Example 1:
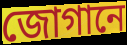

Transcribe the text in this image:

জোগানে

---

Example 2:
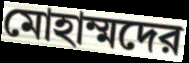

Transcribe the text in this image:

মোহাম্মদের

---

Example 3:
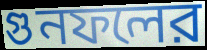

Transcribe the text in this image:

গুনফলের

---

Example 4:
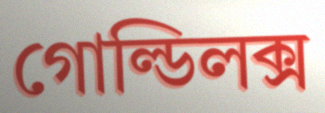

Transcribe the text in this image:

গোল্ডিলক্স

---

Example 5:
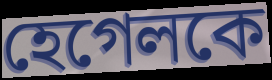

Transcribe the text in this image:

হেগেলকে